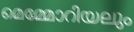
മെമ്മോറിയലും